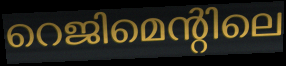
റെജിമെന്റിലെ